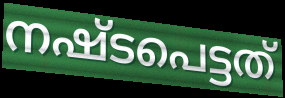
നഷ്ടപെട്ടത്